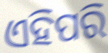
ଏହିପରି